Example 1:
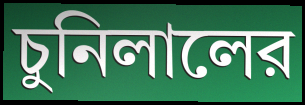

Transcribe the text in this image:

চুনিলালের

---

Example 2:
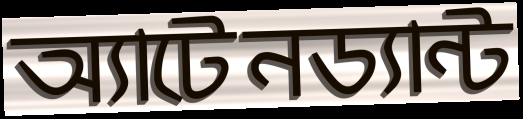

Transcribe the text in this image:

অ্যাটেনড্যান্ট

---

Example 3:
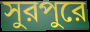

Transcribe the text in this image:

সুরপুরে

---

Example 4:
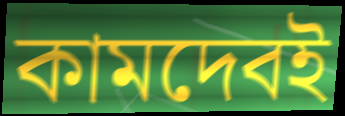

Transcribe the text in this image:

কামদেবই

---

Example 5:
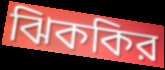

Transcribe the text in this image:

ঝিককির